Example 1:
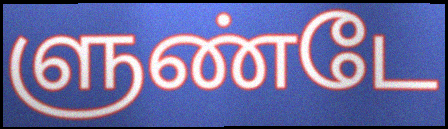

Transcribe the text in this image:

ளுண்டே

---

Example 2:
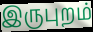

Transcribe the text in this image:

இருபுறம்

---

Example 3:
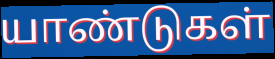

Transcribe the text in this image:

யாண்டுகள்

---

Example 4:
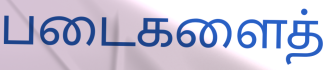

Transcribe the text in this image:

படைகளைத்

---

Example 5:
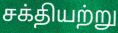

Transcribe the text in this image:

சக்தியற்று